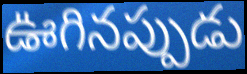
ఊగినప్పుడు